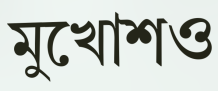
মুখোশও